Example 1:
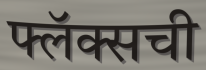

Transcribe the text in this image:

फ्लॅक्सची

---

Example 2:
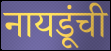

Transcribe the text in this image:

नायडूंची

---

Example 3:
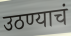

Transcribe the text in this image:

उठण्याचं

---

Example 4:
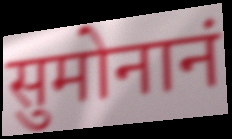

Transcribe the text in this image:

सुमोनानं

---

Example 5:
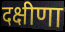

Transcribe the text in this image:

दक्षीणा